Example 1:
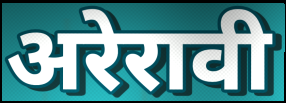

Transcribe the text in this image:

अरेरावी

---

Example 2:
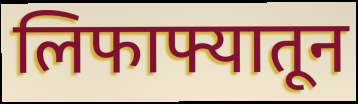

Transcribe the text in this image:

लिफाफ्यातून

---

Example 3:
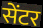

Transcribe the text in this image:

सेंटर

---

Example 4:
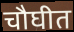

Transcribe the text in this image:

चौघीत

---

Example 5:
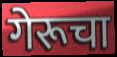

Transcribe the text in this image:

गेरूचा